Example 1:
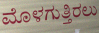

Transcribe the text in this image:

ಮೊಳಗುತ್ತಿರಲು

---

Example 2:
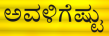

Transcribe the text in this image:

ಅವಳಿಗೆಷ್ಟು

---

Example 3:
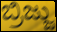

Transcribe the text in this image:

ಬ್ರಿಜ್ಜು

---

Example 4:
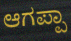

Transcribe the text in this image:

ಆಗಪ್ಪಾ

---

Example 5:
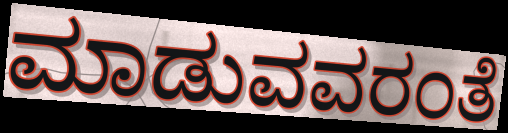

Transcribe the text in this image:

ಮಾಡುವವರಂತೆ